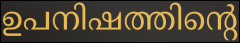
ഉപനിഷത്തിന്റെ